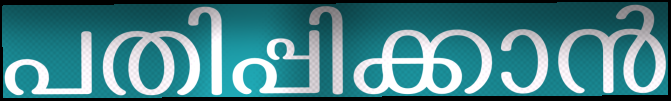
പതിപ്പിക്കാൻ